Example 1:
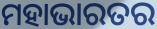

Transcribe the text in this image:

ମହାଭାରତର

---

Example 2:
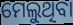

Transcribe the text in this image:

ମେଲୁଥିବା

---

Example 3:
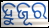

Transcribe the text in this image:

ହୁଜୂର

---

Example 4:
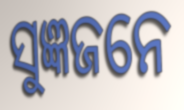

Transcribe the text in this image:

ସୁଜ୍ଞଜନେ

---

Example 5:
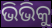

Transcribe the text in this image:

ଭିଭିକୁ